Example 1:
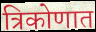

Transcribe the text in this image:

त्रिकोणात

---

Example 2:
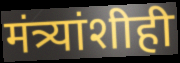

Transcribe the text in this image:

मंत्र्यांशीही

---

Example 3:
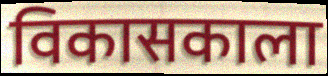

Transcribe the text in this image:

विकासकाला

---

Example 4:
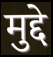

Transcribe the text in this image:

मुद्दे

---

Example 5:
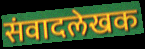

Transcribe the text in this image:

संवादलेखक